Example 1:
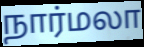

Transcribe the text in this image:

நார்மலா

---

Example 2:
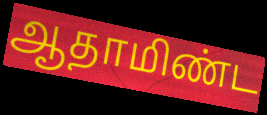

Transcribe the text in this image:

ஆதாமிண்ட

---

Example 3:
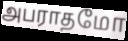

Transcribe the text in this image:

அபராதமோ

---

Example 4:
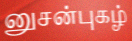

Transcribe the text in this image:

னுசன்புகழ்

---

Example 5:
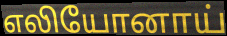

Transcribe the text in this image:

எலியோனாய்